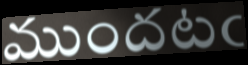
ముందటఁ